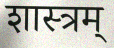
शास्त्रम्